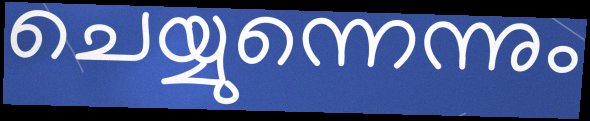
ചെയ്യുന്നെന്നും